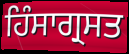
ਹਿੰਸਾਗ੍ਰਸਤ